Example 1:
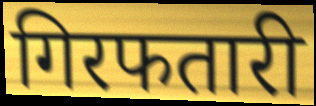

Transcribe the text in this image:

गिरफतारी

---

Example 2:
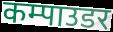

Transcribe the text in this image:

कम्पाउडर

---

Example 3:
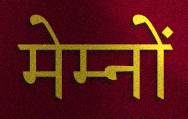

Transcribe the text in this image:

मेम्नों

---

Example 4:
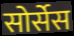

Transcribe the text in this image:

सोर्सेस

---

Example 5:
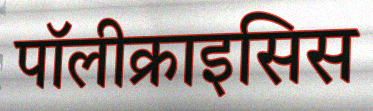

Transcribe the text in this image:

पॉलीक्राइसिस